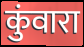
कुंवारा